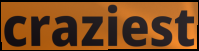
craziest